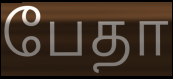
பேதா